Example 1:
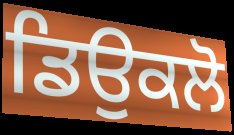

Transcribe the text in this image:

ਡਿਉਕਲੋ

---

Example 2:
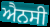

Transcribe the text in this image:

ਐਨਸੀ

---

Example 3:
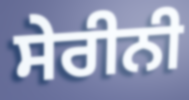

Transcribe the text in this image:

ਸੇਰੀਨੀ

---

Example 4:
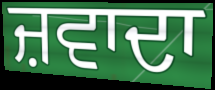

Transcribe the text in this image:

ਜ਼ਵਾਦਾ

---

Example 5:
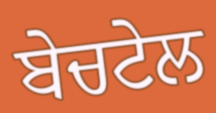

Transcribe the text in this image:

ਬੇਚਟੇਲ